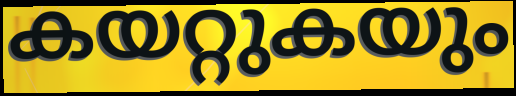
കയറ്റുകയും